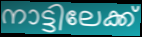
നാട്ടിലേക്ക്